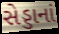
સેડ્ડાનાં